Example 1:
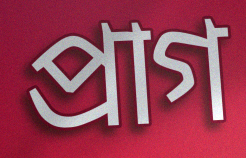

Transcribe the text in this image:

প্ৰাগ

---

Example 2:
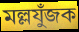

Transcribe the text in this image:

মল্লযুঁজক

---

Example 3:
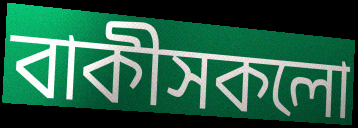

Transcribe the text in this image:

বাকীসকলো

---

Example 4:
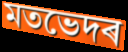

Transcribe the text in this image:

মতভেদৰ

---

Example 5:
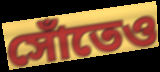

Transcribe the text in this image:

সোঁতেও